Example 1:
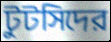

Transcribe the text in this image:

টুটসিদের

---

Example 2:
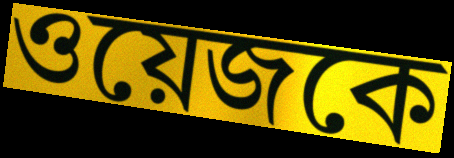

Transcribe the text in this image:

ওয়েজকে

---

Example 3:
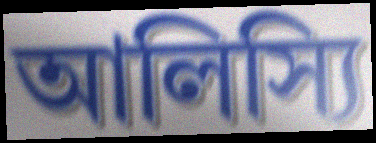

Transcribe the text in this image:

আলিস্যি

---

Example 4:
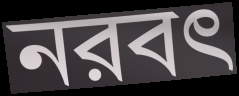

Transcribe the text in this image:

নরবৎ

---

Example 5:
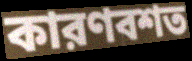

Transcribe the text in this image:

কারণবশত